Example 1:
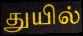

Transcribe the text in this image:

துயில்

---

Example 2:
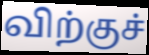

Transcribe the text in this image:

விற்குச்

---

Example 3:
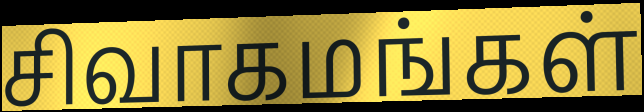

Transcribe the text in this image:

சிவாகமங்கள்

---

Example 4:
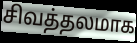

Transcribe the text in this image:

சிவத்தலமாக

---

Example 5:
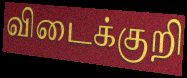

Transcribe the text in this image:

விடைக்குறி